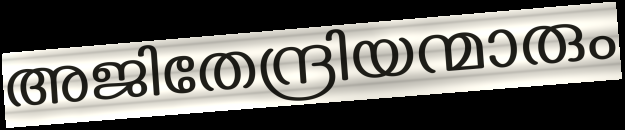
അജിതേന്ദ്രിയന്മാരും